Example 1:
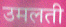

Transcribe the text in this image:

उमलती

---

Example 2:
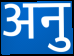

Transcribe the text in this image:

अनु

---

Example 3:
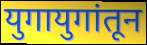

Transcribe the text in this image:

युगायुगांतून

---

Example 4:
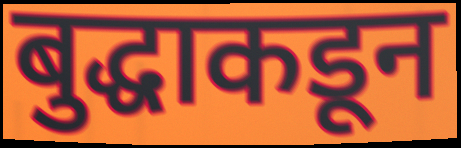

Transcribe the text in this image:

बुद्धाकडून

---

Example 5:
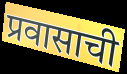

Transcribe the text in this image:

प्रवासाची